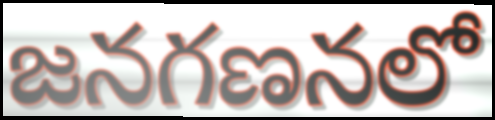
జనగణనలో